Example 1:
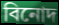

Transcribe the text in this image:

বিনোদ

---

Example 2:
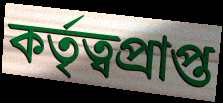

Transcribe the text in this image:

কৰ্তৃত্বপ্ৰাপ্ত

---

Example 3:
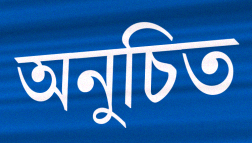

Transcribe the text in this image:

অনুচিত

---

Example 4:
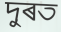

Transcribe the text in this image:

দুৰত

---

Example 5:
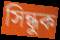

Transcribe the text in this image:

সিন্ধুক